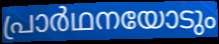
പ്രാർഥനയോടും